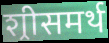
श्रीसमर्थ